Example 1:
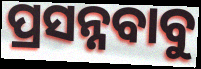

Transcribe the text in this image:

ପ୍ରସନ୍ନବାବୁ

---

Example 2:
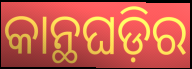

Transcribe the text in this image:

କାନ୍ଥଘଡ଼ିର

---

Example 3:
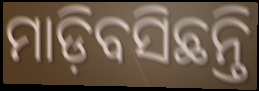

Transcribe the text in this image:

ମାଡ଼ିବସିଛନ୍ତି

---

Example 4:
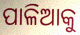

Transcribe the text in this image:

ପାଳିଆକୁ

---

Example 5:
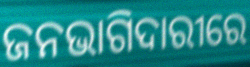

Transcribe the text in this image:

ଜନଭାଗିଦାରୀରେ